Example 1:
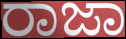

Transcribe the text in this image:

ರಾಜಾ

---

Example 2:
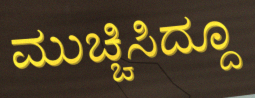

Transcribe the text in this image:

ಮುಚ್ಚಿಸಿದ್ದೂ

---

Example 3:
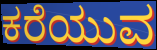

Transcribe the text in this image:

ಕರೆಯುವ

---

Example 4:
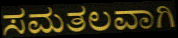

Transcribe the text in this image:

ಸಮತಲವಾಗಿ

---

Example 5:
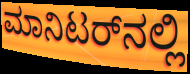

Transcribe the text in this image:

ಮಾನಿಟರ್‌ನಲ್ಲಿ